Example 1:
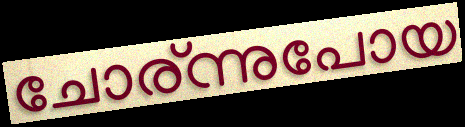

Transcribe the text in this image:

ചോര്ന്നുപോയ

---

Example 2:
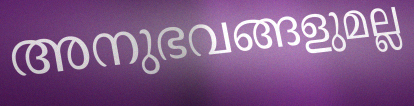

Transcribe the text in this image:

അനുഭവങ്ങളുമല്ല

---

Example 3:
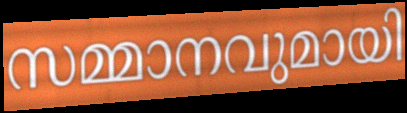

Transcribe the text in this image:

സമ്മാനവുമായി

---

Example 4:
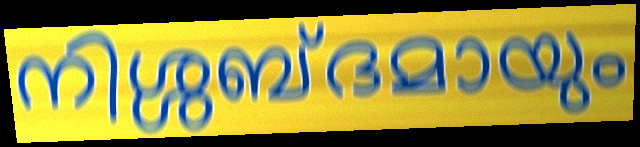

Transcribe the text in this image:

നിശ്ശബ്ദമായും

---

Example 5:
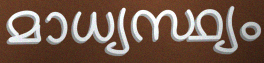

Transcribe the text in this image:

മാധ്യസ്ഥ്യം